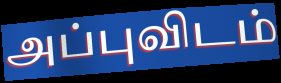
அப்புவிடம்